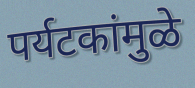
पर्यटकांमुळे